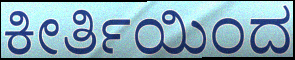
ಕೀರ್ತಿಯಿಂದ